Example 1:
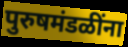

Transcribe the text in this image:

पुरुषमंडळींना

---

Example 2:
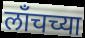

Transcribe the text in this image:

लाँचच्या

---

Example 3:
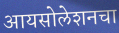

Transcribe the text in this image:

आयसोलेशनचा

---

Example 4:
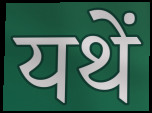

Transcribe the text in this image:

यथें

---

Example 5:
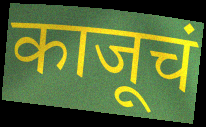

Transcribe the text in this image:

काजूचं